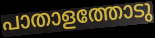
പാതാളത്തോടു